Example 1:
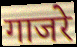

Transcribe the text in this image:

गाजरे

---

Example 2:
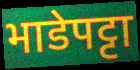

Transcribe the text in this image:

भाडेपट्टा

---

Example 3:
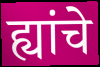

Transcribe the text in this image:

ह्यांचे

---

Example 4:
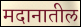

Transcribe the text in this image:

मदानातील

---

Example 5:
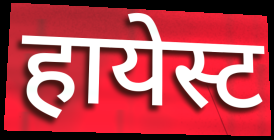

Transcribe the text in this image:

हायेस्ट